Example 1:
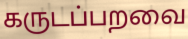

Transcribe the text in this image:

கருடப்பறவை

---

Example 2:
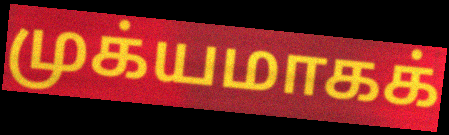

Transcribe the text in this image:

முக்யமாகக்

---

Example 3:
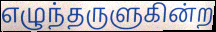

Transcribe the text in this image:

எழுந்தருளுகின்ற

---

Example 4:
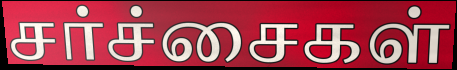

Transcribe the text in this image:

சர்ச்சைகள்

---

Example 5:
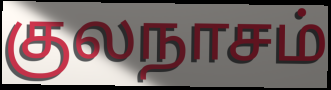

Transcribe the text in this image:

குலநாசம்